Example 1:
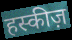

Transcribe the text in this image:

हस्कीज़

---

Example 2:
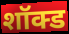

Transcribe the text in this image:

शॉक्ड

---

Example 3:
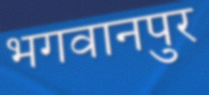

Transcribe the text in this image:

भगवानपुर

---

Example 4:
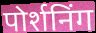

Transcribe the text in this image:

पोर्शनिंग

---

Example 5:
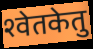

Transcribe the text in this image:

श्वेतकेतु